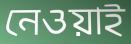
নেওয়াই